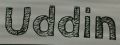
Uddin